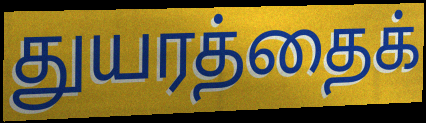
துயரத்தைக்